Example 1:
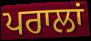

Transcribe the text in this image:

ਪਰਾਲਾਂ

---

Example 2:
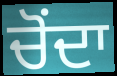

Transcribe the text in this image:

ਚੋਂਦਾ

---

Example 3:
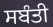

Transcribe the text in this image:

ਸਬੰਤੀ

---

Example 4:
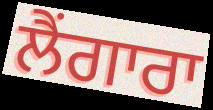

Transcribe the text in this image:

ਲੈਂਗਾਰਾ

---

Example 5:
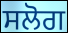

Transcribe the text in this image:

ਸਲੋਗ